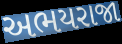
અભયરાજા